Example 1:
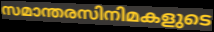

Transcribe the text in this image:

സമാന്തരസിനിമകളുടെ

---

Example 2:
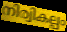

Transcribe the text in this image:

നിര്വികല്പം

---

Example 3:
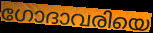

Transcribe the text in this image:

ഗോദാവരിയെ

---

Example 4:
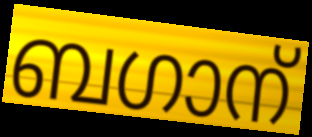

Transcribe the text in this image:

ബഗാന്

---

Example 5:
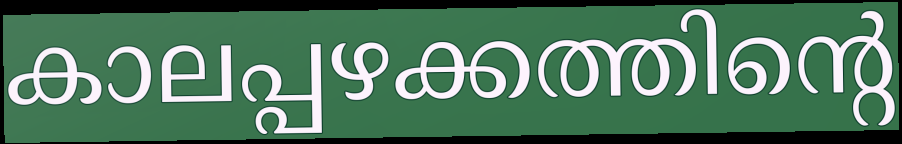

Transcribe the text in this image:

കാലപ്പഴക്കത്തിന്റെ